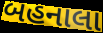
બહનાલા